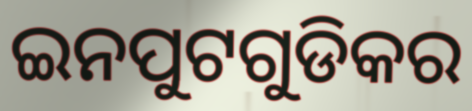
ଇନପୁଟଗୁଡିକର